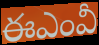
ఈఎంవీ